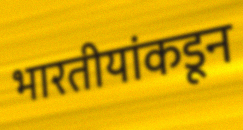
भारतीयांकडून